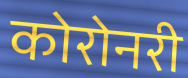
कोरोनरी